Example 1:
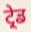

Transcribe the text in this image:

ਟ੍ਰੇਡ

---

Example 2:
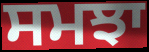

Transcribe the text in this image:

ਸਮਝਾ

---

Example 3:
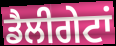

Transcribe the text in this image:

ਡੈਲੀਗੇਟਾਂ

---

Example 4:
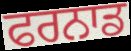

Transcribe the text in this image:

ਫਰਨਾਡ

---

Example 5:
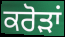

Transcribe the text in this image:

ਕਰੋਡ਼ਾਂ